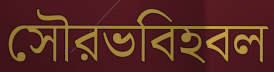
সৌরভবিহবল